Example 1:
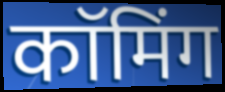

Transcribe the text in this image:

कॉमिंग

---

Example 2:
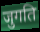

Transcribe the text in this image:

जुगति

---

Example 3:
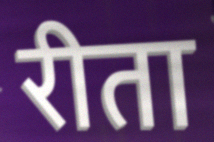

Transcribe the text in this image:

रीता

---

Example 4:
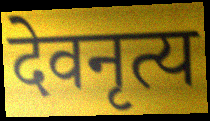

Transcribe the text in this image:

देवनृत्य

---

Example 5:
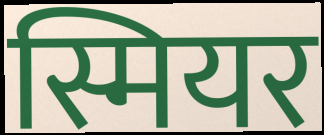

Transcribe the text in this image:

स्मियर